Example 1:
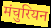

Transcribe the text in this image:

मंचुरियन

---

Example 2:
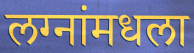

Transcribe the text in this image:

लग्नांमधला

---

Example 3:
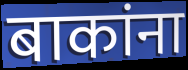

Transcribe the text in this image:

बाकांना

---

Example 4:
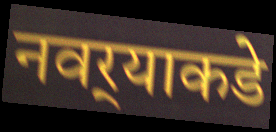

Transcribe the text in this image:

नवर्याकडे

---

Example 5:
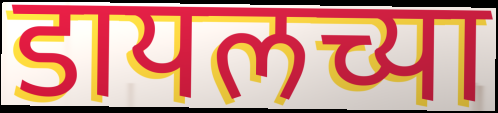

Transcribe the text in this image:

डायलच्या